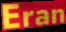
Eran